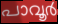
പാവൂർ